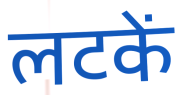
लटकें